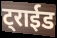
ट्राईड